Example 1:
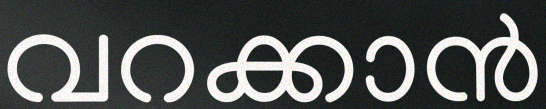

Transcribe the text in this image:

വറക്കാൻ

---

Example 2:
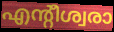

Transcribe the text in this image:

എന്റീശ്വരാ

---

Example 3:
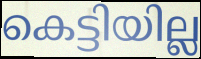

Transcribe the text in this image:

കെട്ടിയില്ല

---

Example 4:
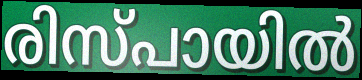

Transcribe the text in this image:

രിസ്പായിൽ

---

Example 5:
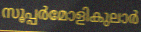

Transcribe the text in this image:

സൂപ്പർമോളികുലാർ